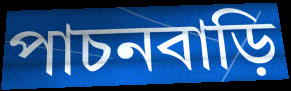
পাচনবাড়ি